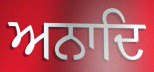
ਅਨਾਦਿ